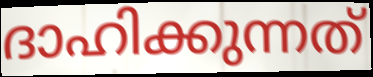
ദാഹിക്കുന്നത്